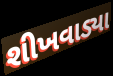
શીખવાડ્યા